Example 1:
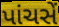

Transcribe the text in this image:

પાંચસેં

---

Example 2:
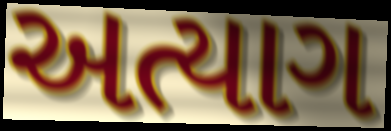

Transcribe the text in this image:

અત્યાગ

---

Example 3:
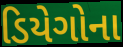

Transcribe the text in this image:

ડિયેગોના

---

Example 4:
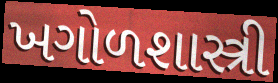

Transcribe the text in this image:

ખગોળશાસ્ત્રી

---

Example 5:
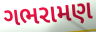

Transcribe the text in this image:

ગભરામણ